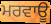
ਮਰਵਾਊ